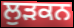
ਲੁੜਕਨ